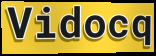
Vidocq